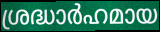
ശ്രദ്ധാർഹമായ